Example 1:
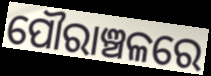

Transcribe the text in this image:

ପୌରାଞ୍ଚଳରେ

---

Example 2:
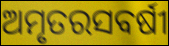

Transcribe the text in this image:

ଅମୃତରସବର୍ଷୀ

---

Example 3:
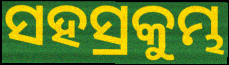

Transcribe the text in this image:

ସହସ୍ରକୁମ୍ଭ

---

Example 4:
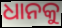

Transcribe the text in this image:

ଧାନକୁ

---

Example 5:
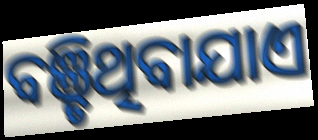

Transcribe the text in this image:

ବଞ୍ଚିଥିବାଯାଏ